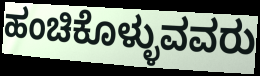
ಹಂಚಿಕೊಳ್ಳುವವರು